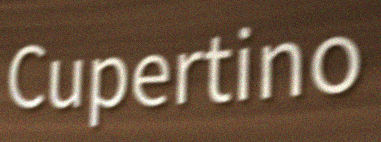
Cupertino